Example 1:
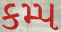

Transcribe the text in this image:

કમ્પ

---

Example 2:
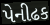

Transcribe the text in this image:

પેનીઢક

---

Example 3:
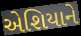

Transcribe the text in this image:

એશિયાને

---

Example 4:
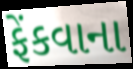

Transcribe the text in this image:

ફેંકવાના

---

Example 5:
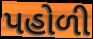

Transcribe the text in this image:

પહોળી